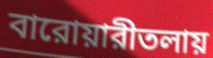
বারোয়ারীতলায়